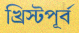
খ্রিস্টপূর্ব